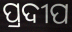
ପ୍ରଦୀପ